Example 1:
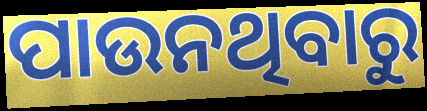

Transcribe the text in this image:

ପାଉନଥିବାରୁ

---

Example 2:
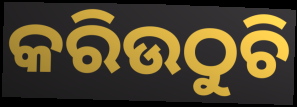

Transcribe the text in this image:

କରିଉଠୁଚି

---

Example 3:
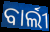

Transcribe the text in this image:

ବାର୍ଲୀ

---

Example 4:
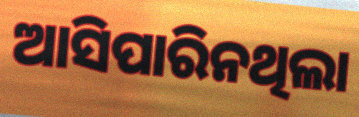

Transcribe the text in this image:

ଆସିପାରିନଥିଲା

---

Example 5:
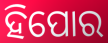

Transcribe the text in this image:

ହିପୋର